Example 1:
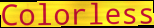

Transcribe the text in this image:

Colorless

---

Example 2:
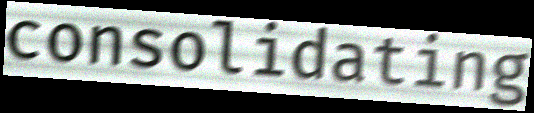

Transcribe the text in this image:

consolidating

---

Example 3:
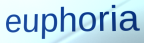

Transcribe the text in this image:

euphoria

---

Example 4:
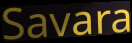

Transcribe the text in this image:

Savara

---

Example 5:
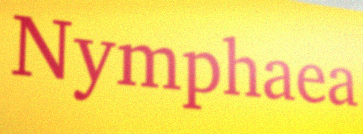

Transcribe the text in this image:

Nymphaea